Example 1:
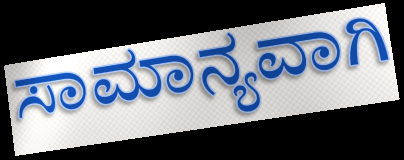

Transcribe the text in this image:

ಸಾಮಾನ್ಯವಾಗಿ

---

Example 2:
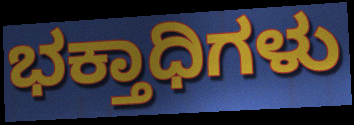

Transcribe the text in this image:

ಭಕ್ತಾಧಿಗಳು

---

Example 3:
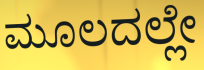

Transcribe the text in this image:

ಮೂಲದಲ್ಲೇ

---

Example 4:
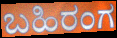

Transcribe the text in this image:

ಬಹಿರಂಗ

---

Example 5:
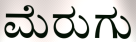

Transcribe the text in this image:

ಮೆರುಗು